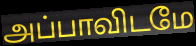
அப்பாவிடமே